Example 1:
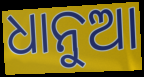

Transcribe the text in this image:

ଧାନୁଆ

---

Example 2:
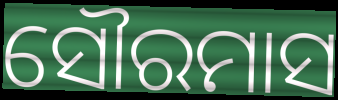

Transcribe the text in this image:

ସୌରମାସ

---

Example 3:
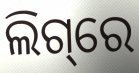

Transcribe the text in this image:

ଲିଗ୍‌ରେ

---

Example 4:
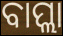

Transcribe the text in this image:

ବାପ୍ଲା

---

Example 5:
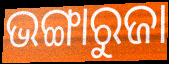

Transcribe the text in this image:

ଭଙ୍ଗାରୁଜା